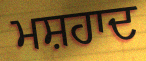
ਮਸ਼ਹਾਦ